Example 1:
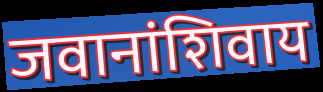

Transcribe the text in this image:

जवानांशिवाय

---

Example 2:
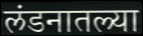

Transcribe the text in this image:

लंडनातल्या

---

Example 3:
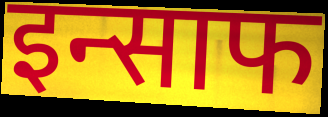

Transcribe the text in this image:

इन्साफ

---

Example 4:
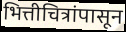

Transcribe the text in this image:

भित्तीचित्रांपासून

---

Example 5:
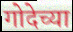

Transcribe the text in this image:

गोदेच्या